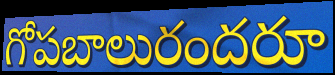
గోపబాలురందరూ